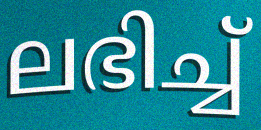
ലഭിച്ച്